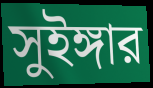
সুইঙ্গার